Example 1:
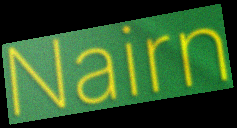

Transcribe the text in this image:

Nairn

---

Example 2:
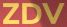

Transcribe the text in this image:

ZDV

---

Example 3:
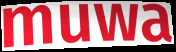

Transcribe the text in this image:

muwa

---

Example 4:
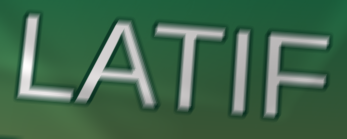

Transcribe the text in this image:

LATIF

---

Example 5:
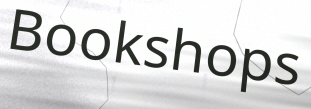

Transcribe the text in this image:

Bookshops